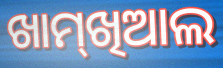
ଖାମ୍‌ଖିଆଲ